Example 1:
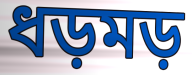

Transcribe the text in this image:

ধড়মড়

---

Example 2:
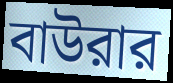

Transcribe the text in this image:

বাউরার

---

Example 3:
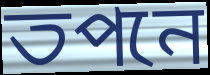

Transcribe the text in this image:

তপনে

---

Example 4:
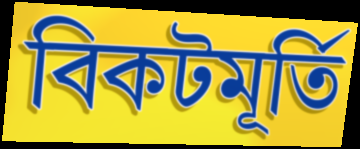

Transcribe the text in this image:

বিকটমূর্তি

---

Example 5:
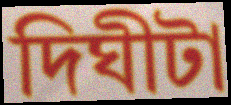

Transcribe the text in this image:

দিঘীটা